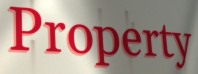
Property